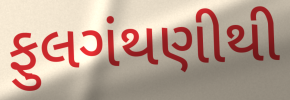
ફુલગંથણીથી